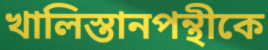
খালিস্তানপন্থীকে